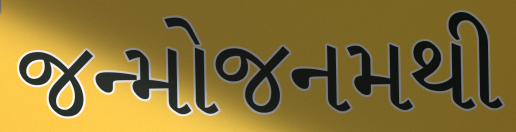
જન્મોજનમથી